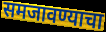
समजावण्याचा